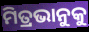
ମିତ୍ରଭାନୁକୁ